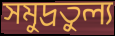
সমুদ্রতুল্য